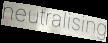
neutralising